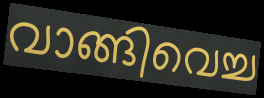
വാങ്ങിവെച്ച